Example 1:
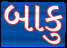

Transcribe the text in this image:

બાકુ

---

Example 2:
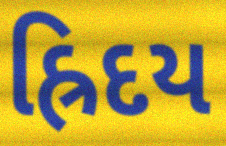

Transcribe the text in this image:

હ્રિદય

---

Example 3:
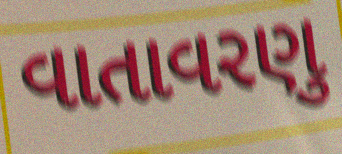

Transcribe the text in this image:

વાતાવરણુ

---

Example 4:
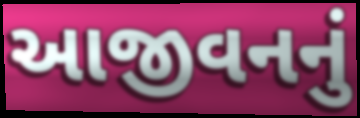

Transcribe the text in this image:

આજીવનનું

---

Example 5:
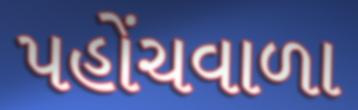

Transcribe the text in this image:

પહોંચવાળા